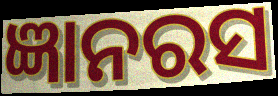
ଜ୍ଞାନରସ